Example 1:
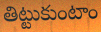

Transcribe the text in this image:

తిట్టుకుంటాం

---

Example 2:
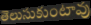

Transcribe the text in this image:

తెలుసుకుంటావు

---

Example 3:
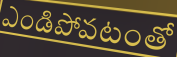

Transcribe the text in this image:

ఎండిపోవటంతో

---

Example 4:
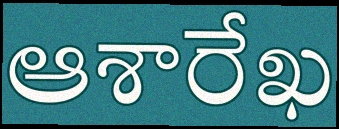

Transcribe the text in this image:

ఆశారేఖ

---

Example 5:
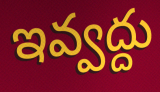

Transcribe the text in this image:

ఇవ్వద్దు